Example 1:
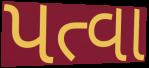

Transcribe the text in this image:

પત્વા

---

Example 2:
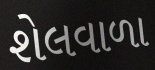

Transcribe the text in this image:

શેલવાળા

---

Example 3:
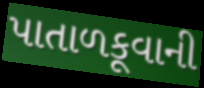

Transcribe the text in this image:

પાતાળકૂવાની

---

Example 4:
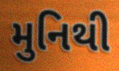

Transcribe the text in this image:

મુનિથી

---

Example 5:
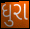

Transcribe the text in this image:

ધુરા